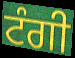
ਟੰਗੀ